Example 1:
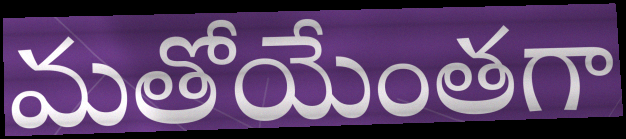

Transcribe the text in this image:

మతోయేంతగా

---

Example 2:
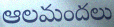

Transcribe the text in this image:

ఆలమందలు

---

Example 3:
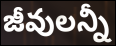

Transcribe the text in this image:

జీవులన్నీ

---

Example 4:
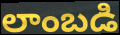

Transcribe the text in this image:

లాంబడి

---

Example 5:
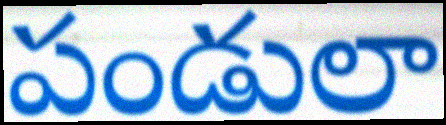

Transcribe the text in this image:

పండులా